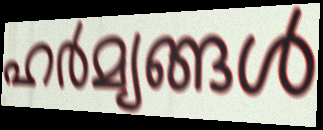
ഹർമ്യങ്ങൾ